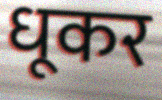
धूकर